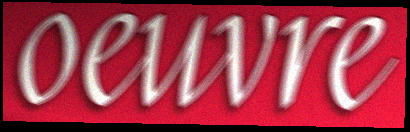
oeuvre